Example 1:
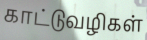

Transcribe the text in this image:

காட்டுவழிகள்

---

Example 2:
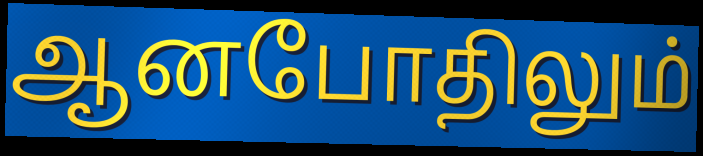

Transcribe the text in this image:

ஆனபோதிலும்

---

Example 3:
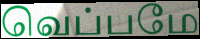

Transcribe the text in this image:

வெப்பமே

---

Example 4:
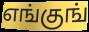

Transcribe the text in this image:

எங்குங்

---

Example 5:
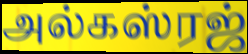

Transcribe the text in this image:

அல்கஸ்ரஜ்